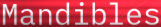
Mandibles